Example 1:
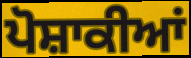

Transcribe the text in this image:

ਪੋਸ਼ਾਕੀਆਂ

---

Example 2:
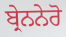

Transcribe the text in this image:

ਬ੍ਰੇਨਨੇਰੋ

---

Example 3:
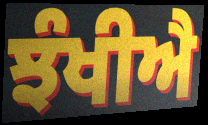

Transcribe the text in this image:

ਝੰਖੀਐ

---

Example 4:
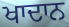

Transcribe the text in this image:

ਖਾਦਾਨ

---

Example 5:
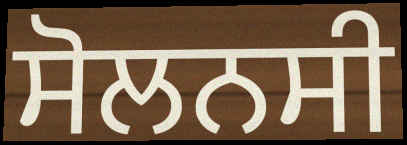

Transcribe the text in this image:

ਸੋਲਨਸੀ